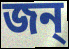
জন্